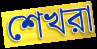
শেখরা